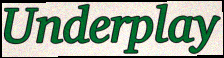
Underplay